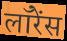
लॉरेंस